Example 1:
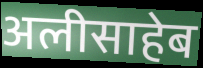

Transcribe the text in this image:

अलीसाहेब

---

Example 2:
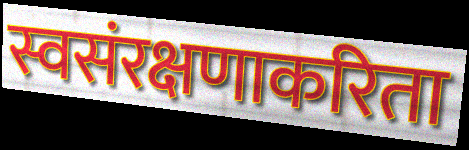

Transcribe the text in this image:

स्वसंरक्षणाकरिता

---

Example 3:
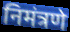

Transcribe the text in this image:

निमंत्रणे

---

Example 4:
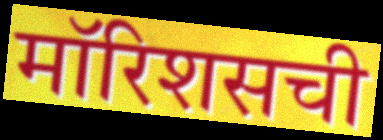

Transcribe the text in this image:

मॉरिशसची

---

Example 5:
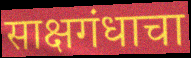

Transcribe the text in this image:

साक्षगंधाचा